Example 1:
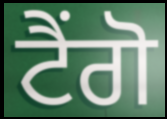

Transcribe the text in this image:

ਟੈਂਗੋ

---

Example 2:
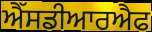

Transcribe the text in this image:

ਐੱਸਡੀਆਰਐਫ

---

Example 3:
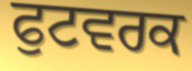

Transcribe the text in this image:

ਫੁਟਵਰਕ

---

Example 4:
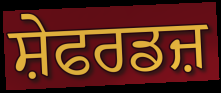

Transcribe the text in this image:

ਸ਼ੇਫਰਡਜ਼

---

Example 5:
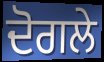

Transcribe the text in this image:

ਦੋਗਲੇ